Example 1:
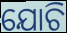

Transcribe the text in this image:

ଯୋଚି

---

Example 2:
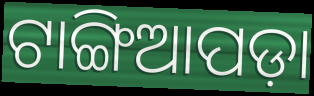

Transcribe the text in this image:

ଟାଙ୍ଗିଆପଡ଼ା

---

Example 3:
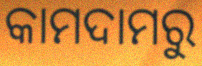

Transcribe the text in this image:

କାମଦାମରୁ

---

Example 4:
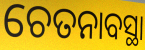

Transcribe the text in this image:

ଚେତନାବସ୍ଥା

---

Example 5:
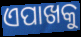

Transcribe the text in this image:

ଏପାଖକୁ